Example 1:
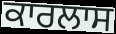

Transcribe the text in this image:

ਕਾਰਲਾਸ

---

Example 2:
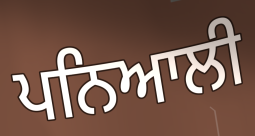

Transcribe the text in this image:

ਪਨਿਆਲੀ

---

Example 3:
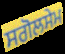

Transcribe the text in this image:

ਸਗੋਲਸੇਮ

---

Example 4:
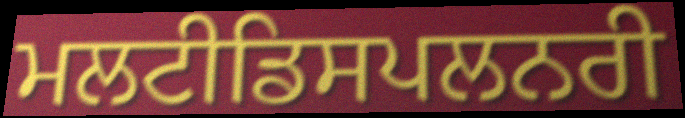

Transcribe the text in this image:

ਮਲਟੀਡਿਸਪਲਨਰੀ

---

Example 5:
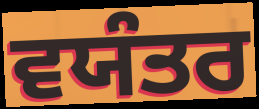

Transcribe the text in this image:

ਵਯੰਤਰ